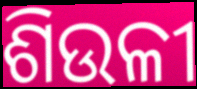
ଶିଉଳୀ